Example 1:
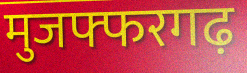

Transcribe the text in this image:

मुजफ्फरगढ़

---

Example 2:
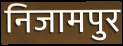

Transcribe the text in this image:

निजामपुर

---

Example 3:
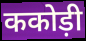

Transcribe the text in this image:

ककोड़ी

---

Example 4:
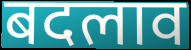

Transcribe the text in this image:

बदलाव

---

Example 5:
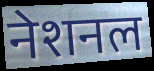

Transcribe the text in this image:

नेशनल